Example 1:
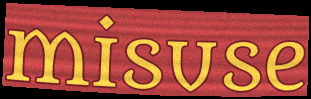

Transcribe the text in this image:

misuse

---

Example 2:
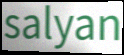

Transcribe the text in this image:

salyan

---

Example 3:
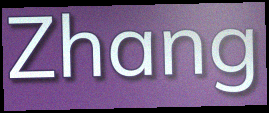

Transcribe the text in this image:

Zhang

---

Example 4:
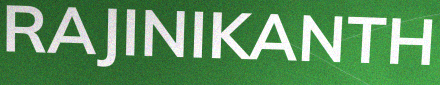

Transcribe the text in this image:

RAJINIKANTH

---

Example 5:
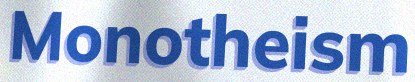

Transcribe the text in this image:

Monotheism